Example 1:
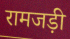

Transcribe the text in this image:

रामजड़ी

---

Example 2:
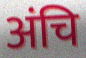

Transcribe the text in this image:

अंचि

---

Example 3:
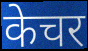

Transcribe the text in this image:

केचर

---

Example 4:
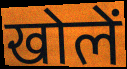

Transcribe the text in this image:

खोलें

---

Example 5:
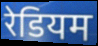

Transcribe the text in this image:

रेडियम